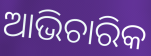
ଆଭିଚାରିକ